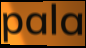
pala